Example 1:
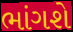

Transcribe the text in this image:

ભાંગશે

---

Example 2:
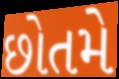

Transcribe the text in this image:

છોતમે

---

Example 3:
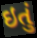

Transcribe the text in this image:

ઇતું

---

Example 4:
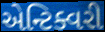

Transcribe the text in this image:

એન્ટિક્વરી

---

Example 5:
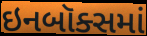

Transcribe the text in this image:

ઇનબૉક્સમાં